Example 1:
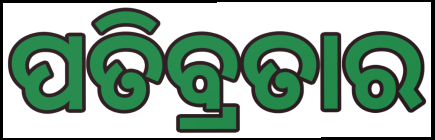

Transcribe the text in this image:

ପତିବ୍ରତାର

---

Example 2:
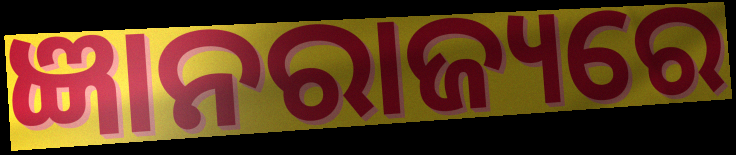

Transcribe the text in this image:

ଜ୍ଞାନରାଜ୍ୟରେ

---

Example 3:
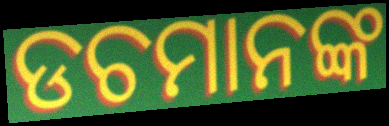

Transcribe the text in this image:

ଡଚମାନଙ୍କ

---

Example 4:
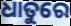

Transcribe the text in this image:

ଧାତୁରେ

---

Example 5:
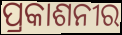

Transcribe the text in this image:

ପ୍ରକାଶନୀର